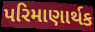
પરિમાણાર્થક